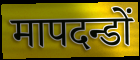
मापदन्डों